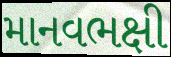
માનવભક્ષી